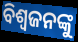
ବିଶ୍ୱଜନଙ୍କୁ